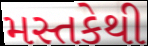
મસ્તકેથી